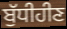
ਬੁੱਧੀਹੀਣ